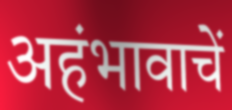
अहंभावाचें